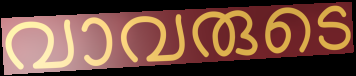
വാവരുടെ